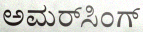
ಅಮರ್‌ಸಿಂಗ್